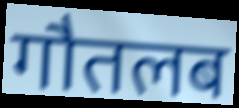
गौतलब